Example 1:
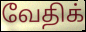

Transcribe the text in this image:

வேதிக்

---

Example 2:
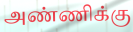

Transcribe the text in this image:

அண்ணிக்கு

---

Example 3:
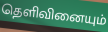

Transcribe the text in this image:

தெளிவினையும்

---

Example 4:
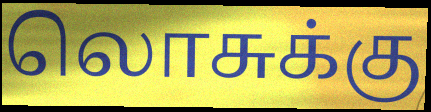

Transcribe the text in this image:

லொசுக்கு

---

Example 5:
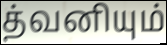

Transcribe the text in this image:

த்வனியும்